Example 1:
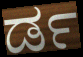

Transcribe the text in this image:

ರ್ಡ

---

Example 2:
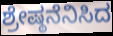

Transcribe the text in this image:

ಶ್ರೇಷ್ಠನೆನಿಸಿದ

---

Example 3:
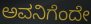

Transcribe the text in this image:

ಅವನಿಗೆಂದೇ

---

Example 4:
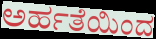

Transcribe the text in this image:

ಅರ್ಹತೆಯಿಂದ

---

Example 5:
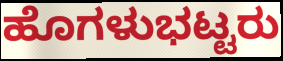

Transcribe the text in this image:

ಹೊಗಳುಭಟ್ಟರು